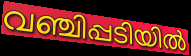
വഞ്ചിപ്പടിയിൽ